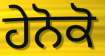
ਹੇਨੋਕੋ